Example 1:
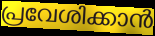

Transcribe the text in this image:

പ്രവേശിക്കാൻ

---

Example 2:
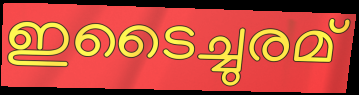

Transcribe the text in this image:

ഇടൈച്ചുരമ്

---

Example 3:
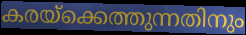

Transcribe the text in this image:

കരയ്ക്കെത്തുന്നതിനും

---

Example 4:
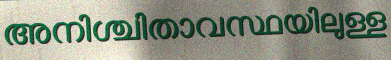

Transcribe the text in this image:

അനിശ്ചിതാവസ്ഥയിലുള്ള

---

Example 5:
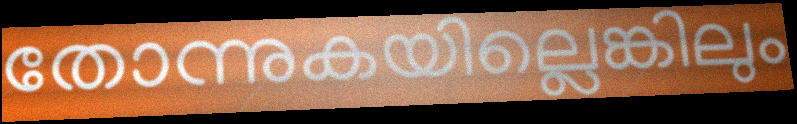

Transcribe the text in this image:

തോന്നുകയില്ലെങ്കിലും